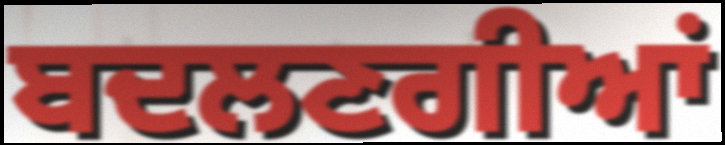
ਬਦਲਣਗੀਆਂ